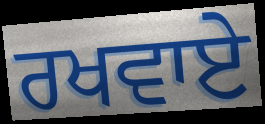
ਰਖਵਾਏ